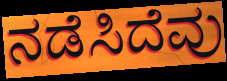
ನಡೆಸಿದೆವು